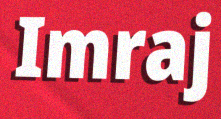
Imraj